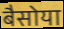
बैसोया